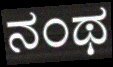
ನಂಥ